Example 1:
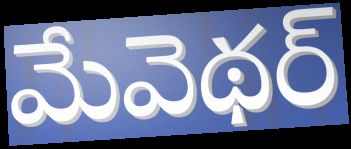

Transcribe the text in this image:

మేవెథర్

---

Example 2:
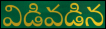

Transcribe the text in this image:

విడివడిన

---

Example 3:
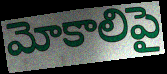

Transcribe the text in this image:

మోకాలిపై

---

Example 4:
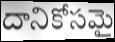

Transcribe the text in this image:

దానికోసమై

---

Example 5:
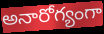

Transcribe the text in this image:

అనారోగ్యంగా